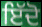
ਇੱਦੋ